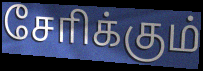
சேரிக்கும்